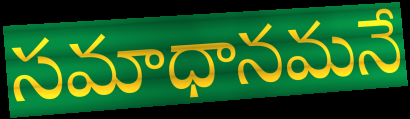
సమాధానమనే